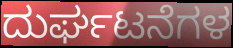
ದುರ್ಘಟನೆಗಳ